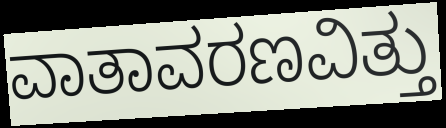
ವಾತಾವರಣವಿತ್ತು